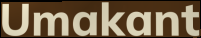
Umakant